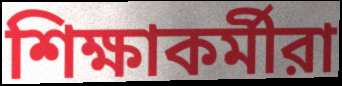
শিক্ষাকর্মীরা